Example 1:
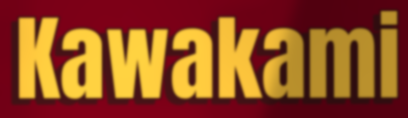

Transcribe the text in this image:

Kawakami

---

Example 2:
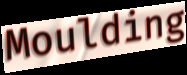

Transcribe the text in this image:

Moulding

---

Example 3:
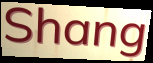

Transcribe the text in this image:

Shang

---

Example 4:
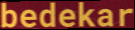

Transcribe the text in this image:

bedekar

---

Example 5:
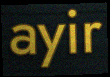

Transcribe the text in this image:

ayir